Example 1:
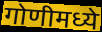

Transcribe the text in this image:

गोणीमध्ये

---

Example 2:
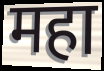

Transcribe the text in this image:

महा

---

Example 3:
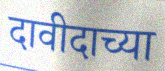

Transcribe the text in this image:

दावीदाच्या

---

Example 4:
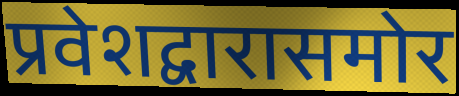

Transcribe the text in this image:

प्रवेशद्वारासमोर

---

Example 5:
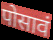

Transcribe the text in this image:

पोसावं